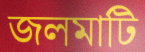
জলমাটি